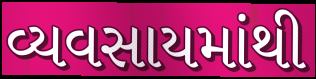
વ્યવસાયમાંથી